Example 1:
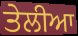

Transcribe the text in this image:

ਤੇਲੀਆ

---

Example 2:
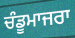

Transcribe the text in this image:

ਚੰਡੂਮਾਜਰਾ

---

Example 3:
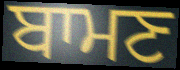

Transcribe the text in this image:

ਬਾਮਣ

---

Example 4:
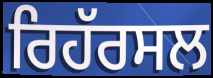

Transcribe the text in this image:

ਰਿਹੱਰਸਲ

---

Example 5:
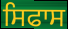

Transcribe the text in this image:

ਸਿਫਾਸ